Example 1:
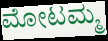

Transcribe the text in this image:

ಮೋಟಮ್ಮ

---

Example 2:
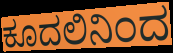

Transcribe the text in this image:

ಕೂದಲಿನಿಂದ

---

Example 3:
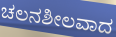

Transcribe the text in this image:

ಚಲನಶೀಲವಾದ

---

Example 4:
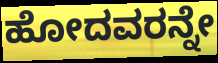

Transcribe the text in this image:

ಹೋದವರನ್ನೇ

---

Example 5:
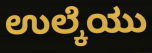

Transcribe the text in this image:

ಉಲ್ಕೆಯು